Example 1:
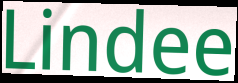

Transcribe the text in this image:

Lindee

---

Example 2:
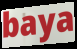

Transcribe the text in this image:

baya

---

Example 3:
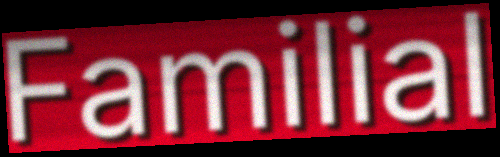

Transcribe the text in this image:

Familial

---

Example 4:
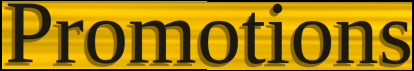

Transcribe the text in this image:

Promotions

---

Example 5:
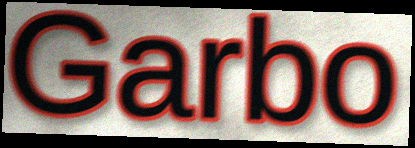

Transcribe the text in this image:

Garbo